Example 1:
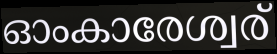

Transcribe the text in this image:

ഓംകാരേശ്വര്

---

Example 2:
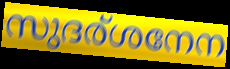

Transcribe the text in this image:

സുദര്ശനേന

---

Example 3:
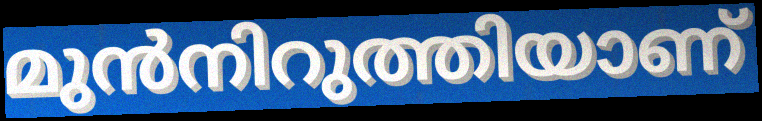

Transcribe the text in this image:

മുൻനിറുത്തിയാണ്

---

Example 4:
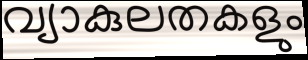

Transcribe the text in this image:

വ്യാകുലതകളും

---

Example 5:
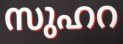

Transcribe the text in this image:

സുഹറ